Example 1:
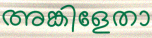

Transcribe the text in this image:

അങ്കിളേതാ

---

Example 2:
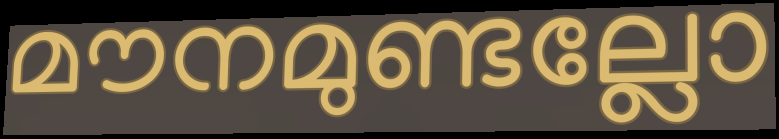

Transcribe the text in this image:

മൗനമുണ്ടല്ലോ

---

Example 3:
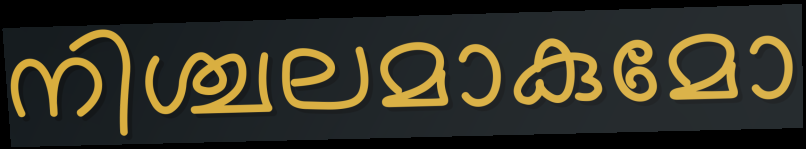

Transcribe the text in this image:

നിശ്ചലമാകുമോ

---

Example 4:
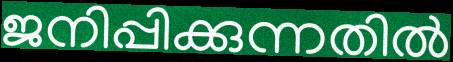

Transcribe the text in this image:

ജനിപ്പിക്കുന്നതിൽ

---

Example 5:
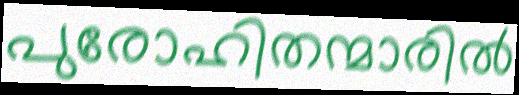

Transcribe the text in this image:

പുരോഹിതന്മാരിൽ